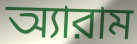
অ্যারাম